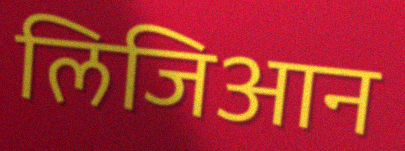
लिजिआन